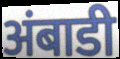
अंबाडी